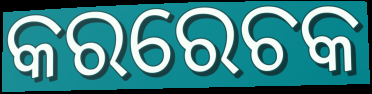
କରରେଚକ